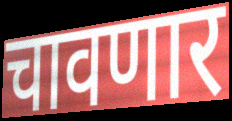
चावणार